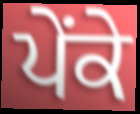
ਪੇਂਕੇ